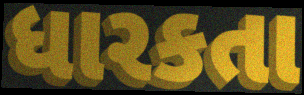
ધારકતા